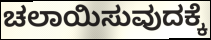
ಚಲಾಯಿಸುವುದಕ್ಕೆ